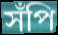
সঁপি